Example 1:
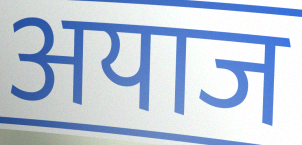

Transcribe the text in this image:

अयाज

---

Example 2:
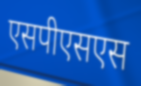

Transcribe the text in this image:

एसपीएसएस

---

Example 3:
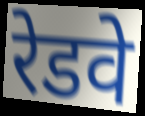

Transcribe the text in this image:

रेडवे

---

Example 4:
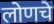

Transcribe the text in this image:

लोणचे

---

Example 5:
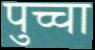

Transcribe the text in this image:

पुच्चा